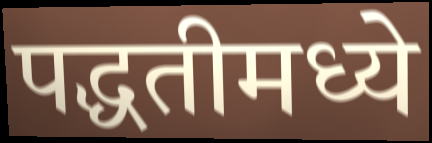
पद्धतीमध्ये